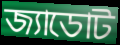
জ্যাডোট